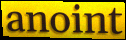
anoint